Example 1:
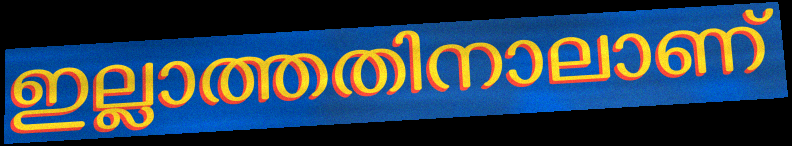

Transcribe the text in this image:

ഇല്ലാത്തതിനാലാണ്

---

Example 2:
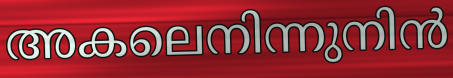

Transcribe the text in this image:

അകലെനിന്നുനിൻ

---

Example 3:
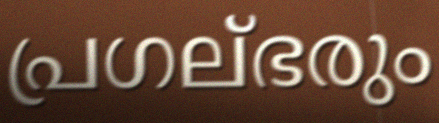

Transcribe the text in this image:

പ്രഗല്ഭരും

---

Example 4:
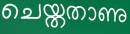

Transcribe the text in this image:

ചെയ്തതാണു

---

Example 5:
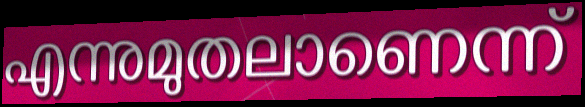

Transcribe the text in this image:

എന്നുമുതലാണെന്ന്